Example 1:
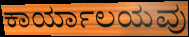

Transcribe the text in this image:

ಕಾರ್ಯಾಲಯವು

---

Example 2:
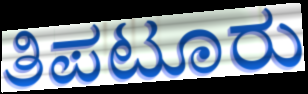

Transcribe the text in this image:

ತಿಪಟೂರು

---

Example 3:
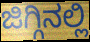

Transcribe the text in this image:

ಜಿಗ್ಗಿನಲ್ಲಿ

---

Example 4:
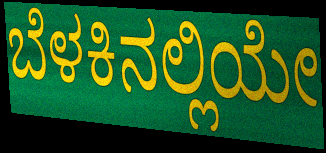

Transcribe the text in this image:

ಬೆಳಕಿನಲ್ಲಿಯೇ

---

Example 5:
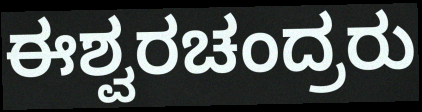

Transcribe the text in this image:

ಈಶ್ವರಚಂದ್ರರು